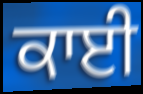
ਕਾਈ